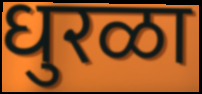
धुरळा